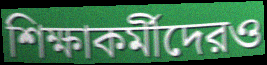
শিক্ষাকর্মীদেরও